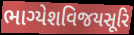
ભાગ્યેશવિજયસૂરિ